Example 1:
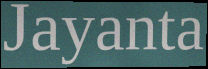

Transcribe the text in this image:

Jayanta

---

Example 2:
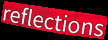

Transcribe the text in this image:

reflections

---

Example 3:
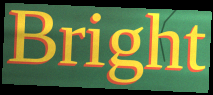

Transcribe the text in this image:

Bright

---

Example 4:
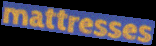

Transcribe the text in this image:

mattresses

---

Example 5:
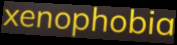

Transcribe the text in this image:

xenophobia